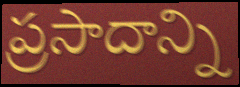
ప్రసాదాన్ని